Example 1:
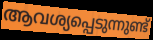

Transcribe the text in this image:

ആവശ്യപ്പെടുന്നുണ്ട്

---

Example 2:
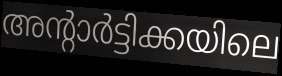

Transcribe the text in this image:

അന്റാർട്ടിക്കയിലെ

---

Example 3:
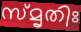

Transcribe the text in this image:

സ്മൃതിഃ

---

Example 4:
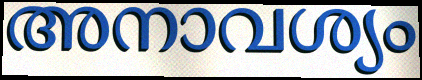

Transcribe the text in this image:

അനാവശ്യം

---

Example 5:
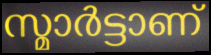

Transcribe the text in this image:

സ്മാർട്ടാണ്